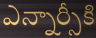
ఎన్నార్సీకి